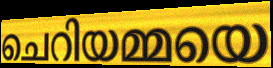
ചെറിയമ്മയെ